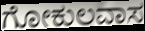
ಗೋಕುಲವಾಸ